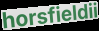
horsfieldii